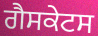
ਗੈਸਕੇਟਸ